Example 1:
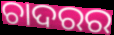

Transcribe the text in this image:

ଚାଦରର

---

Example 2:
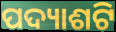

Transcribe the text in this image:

ପଦ୍ୟାଶଟି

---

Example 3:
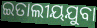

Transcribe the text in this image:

ଇତାଲୀୟଯୁବା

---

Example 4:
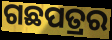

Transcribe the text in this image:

ଗଛପତ୍ରର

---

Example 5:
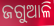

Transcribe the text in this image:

ଜଗୁଆଳି